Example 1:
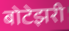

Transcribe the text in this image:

बोटेझरी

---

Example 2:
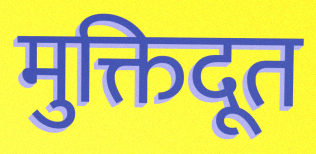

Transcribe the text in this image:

मुक्तिदूत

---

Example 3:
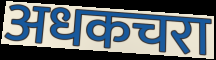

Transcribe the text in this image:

अधकचरा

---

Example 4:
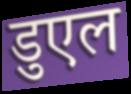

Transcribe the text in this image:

डुएल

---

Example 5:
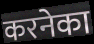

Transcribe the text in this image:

करनेका